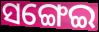
ସଙ୍ଗେଇ